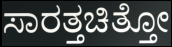
ಸಾರತ್ತಚಿತ್ತೋ